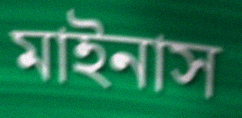
মাইনাস